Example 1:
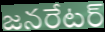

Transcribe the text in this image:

జనరేటర్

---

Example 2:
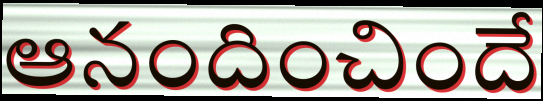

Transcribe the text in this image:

ఆనందించిందే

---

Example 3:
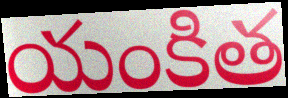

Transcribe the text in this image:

యంకిత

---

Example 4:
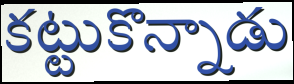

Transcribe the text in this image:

కట్టుకొన్నాడు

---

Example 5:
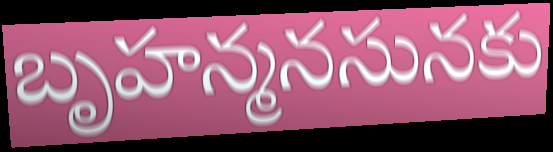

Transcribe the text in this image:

బృహన్మనసునకు